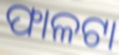
ଫାଳଟା